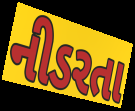
નીડરતા